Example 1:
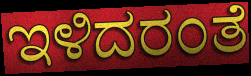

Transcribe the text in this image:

ಇಳಿದರಂತೆ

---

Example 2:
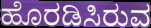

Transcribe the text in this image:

ಹೊರಡಿಸಿರುವ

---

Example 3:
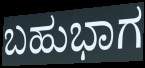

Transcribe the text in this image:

ಬಹುಭಾಗ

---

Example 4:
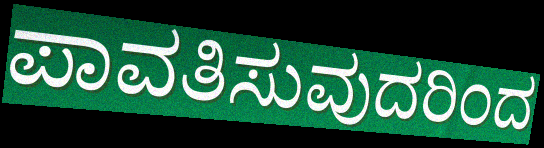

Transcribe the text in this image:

ಪಾವತಿಸುವುದರಿಂದ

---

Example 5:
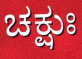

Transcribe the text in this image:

ಚಕ್ಷುಃ